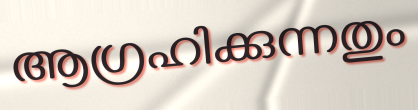
ആഗ്രഹിക്കുന്നതും